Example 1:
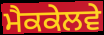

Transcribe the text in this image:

ਮੈਕਕੇਲਵੇ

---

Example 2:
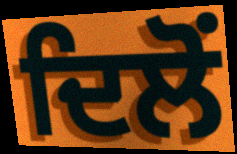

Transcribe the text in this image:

ਦਿਲੋਂ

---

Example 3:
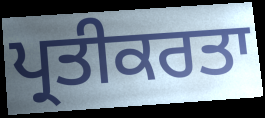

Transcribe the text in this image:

ਪ੍ਰਤੀਕਰਤਾ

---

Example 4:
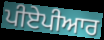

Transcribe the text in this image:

ਪੀਏਪੀਆਰ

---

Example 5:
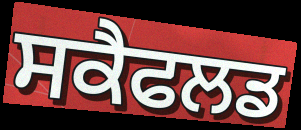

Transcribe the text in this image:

ਸਕੈਫਲਡ